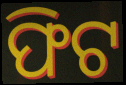
ଫିଟ